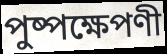
পুষ্পক্ষেপণী